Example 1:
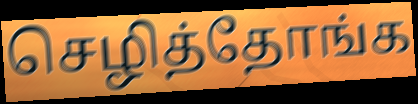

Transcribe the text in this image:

செழித்தோங்க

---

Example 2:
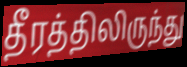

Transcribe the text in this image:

தீரத்திலிருந்து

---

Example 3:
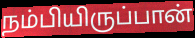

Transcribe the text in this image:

நம்பியிருப்பான்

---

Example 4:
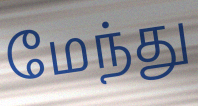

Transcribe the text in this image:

மேந்து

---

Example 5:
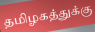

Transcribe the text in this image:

தமிழகத்துக்கு